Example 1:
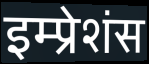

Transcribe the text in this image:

इम्प्रेशंस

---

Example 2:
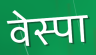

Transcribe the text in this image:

वेस्‍पा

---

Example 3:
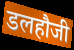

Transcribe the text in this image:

डलहौजी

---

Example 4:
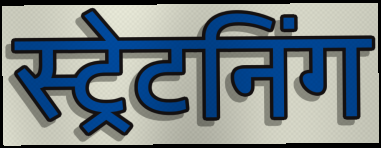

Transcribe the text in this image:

स्ट्रेटनिंग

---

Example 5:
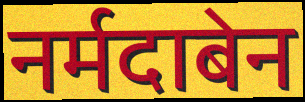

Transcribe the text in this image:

नर्मदाबेन